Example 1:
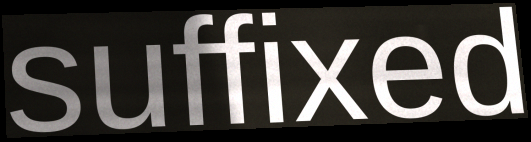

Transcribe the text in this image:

suffixed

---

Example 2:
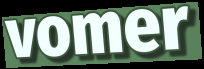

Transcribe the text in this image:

vomer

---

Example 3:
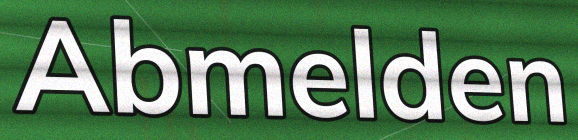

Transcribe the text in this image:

Abmelden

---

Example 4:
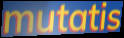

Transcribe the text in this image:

mutatis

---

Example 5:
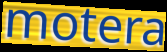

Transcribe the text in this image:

motera